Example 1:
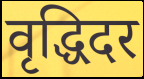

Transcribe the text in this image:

वृद्धिदर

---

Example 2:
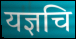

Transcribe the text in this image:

यज्ञचि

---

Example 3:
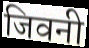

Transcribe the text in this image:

जिवनी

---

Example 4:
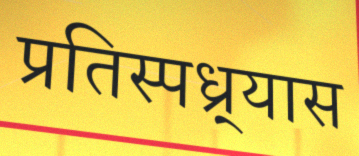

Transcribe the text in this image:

प्रतिस्पध्र्यास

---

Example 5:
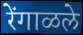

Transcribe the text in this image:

रेंगाळले